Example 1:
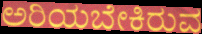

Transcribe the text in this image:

ಅರಿಯಬೇಕಿರುವ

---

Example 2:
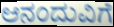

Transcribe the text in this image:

ಆನಂದುವಿಗೆ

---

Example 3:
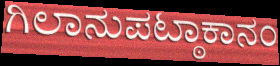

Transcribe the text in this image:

ಗಿಲಾನುಪಟ್ಠಾಕಾನಂ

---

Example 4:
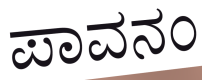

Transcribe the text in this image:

ಪಾವನಂ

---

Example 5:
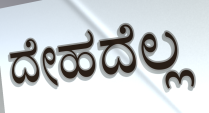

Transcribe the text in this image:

ದೇಹದೆಲ್ಲ